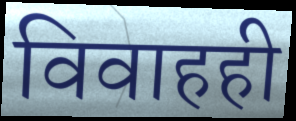
विवाहही